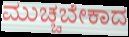
ಮುಚ್ಚಬೇಕಾದ